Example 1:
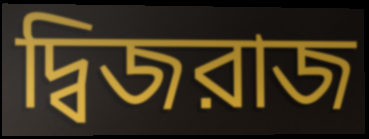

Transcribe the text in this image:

দ্বিজরাজ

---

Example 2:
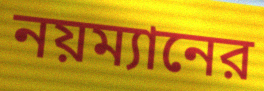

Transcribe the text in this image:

নয়ম্যানের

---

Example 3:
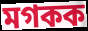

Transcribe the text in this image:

মগকক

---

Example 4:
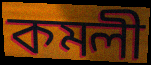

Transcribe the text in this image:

কমলী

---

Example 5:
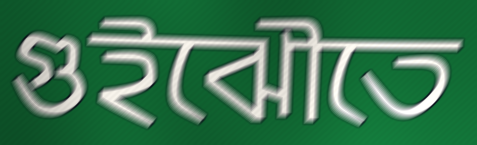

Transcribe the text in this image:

গুইঝৌতে